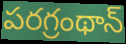
పరగ్రంథాన్